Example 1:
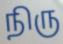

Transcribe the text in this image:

நிரு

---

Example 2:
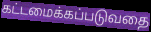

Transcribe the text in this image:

கட்டமைக்கப்படுவதை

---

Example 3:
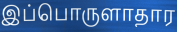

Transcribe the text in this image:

இப்பொருளாதார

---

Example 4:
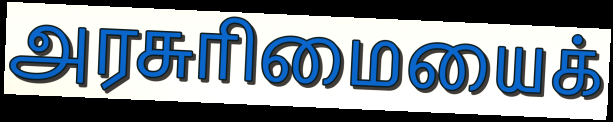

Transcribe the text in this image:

அரசுரிமையைக்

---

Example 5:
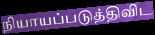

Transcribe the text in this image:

நியாயப்படுத்திவிட